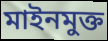
মাইনমুক্ত